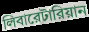
লিবারেটারিয়ান